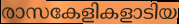
രാസകേളികളാടിയ